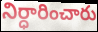
నిర్ధారించారు